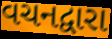
વચનદ્વારા